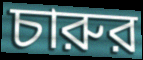
চারুর